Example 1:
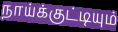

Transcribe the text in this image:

நாய்க்குட்டியும்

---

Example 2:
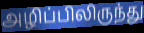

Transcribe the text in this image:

அழிப்பிலிருந்து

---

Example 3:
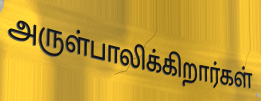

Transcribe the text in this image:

அருள்பாலிக்கிறார்கள்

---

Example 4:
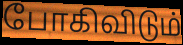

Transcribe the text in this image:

போகிவிடும்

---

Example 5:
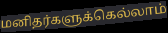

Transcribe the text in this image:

மனிதர்களுக்கெல்லாம்